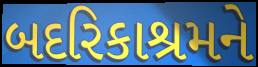
બદરિકાશ્રમને